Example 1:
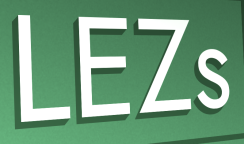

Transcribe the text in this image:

LEZs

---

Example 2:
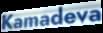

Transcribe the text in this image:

Kamadeva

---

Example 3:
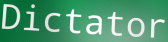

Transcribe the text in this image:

Dictator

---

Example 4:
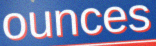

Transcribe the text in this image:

ounces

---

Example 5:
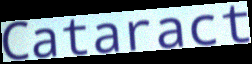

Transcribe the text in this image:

Cataract